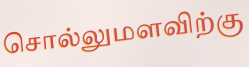
சொல்லுமளவிற்கு